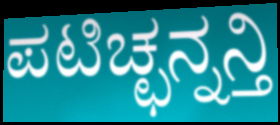
ಪಟಿಚ್ಛನ್ನನ್ತಿ